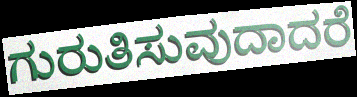
ಗುರುತಿಸುವುದಾದರೆ